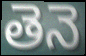
తెనె